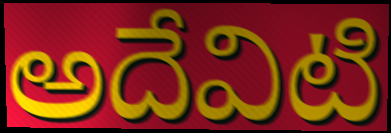
అదేవిటి